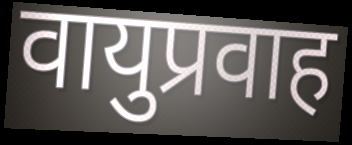
वायुप्रवाह